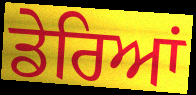
ਡੇਰਿਆਂ